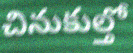
చినుకుల్తో